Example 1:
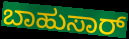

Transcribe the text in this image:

ಬಾಹುಸಾರ್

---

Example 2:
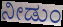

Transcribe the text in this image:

ನೀಡುಂ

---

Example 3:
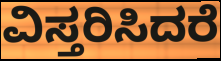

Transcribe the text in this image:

ವಿಸ್ತರಿಸಿದರೆ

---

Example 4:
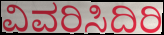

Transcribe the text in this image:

ವಿವರಿಸಿದಿರಿ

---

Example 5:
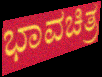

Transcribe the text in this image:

ಭಾವಚಿತ್ರ